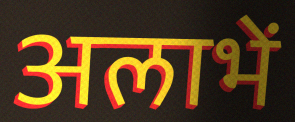
अलाभें